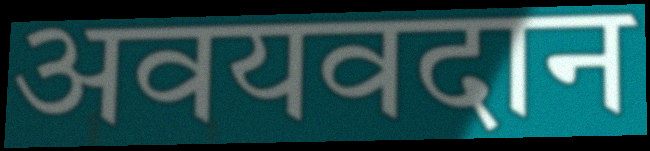
अवयवदान